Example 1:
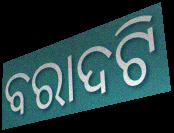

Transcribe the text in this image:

ବରାଦଟି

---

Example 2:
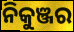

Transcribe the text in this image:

ନିକୁଞ୍ଜର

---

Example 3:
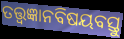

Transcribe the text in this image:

ତତ୍ତ୍ୱଜ୍ଞାନବିଷୟବସ୍ତୁ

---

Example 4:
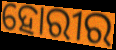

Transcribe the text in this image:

ହୋରୀର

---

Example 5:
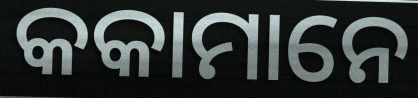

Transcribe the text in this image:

କକାମାନେ